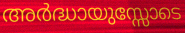
അർദ്ധായുസ്സോടെ